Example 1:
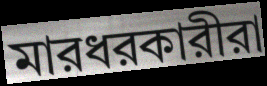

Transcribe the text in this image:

মারধরকারীরা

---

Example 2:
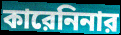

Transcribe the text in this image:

কারেনিনার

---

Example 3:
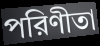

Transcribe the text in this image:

পরিণীতা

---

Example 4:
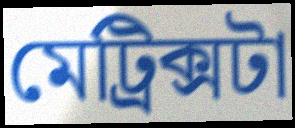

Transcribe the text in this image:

মেট্রিক্সটা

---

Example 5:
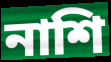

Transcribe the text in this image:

নাশি